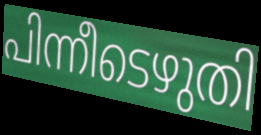
പിന്നീടെഴുതി